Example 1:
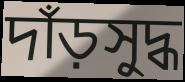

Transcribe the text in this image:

দাঁড়সুদ্ধ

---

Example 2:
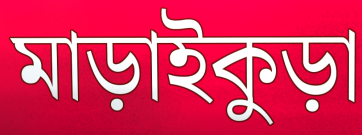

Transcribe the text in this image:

মাড়াইকুড়া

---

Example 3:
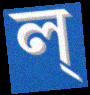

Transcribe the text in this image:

ল্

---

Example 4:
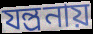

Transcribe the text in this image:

যন্ত্রনায়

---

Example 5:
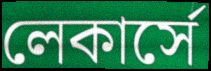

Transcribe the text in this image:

লেকার্সে